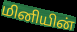
மினியின்